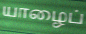
யாழைப்